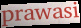
prawasi